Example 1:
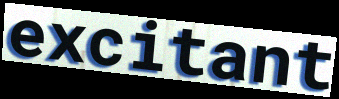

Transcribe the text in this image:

excitant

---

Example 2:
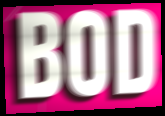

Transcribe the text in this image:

BOD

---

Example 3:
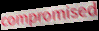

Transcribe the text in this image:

compromised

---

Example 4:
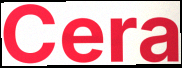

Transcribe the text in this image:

Cera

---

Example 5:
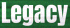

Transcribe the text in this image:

Legacy